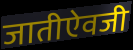
जातीऐवजी